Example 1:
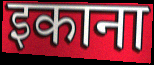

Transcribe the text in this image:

इकाना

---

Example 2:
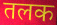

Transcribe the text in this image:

तलक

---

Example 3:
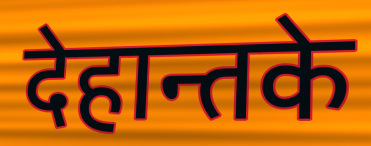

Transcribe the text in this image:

देहान्तके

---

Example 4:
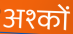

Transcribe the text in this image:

अश्कों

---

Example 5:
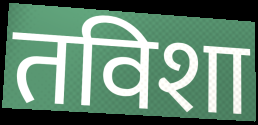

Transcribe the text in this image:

तविशा